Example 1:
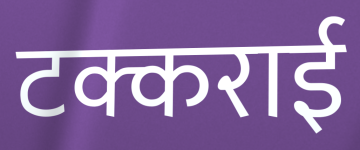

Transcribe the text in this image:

टक्कराई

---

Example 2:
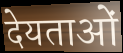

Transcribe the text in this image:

देयताओं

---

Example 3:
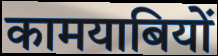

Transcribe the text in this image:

कामयाबियों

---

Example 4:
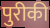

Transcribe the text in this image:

पुरीकी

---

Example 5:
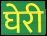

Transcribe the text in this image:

घेरी